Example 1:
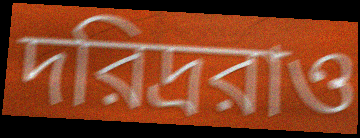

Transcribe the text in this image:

দরিদ্ররাও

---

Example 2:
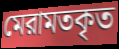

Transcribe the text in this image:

মেরামতকৃত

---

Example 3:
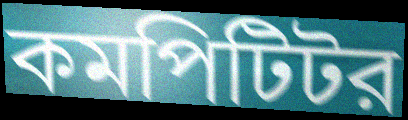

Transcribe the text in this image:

কমপিটিটর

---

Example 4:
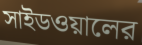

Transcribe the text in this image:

সাইডওয়ালের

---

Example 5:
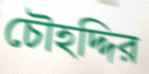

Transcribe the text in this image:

চৌহদ্দির